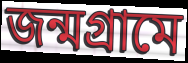
জন্মগ্রামে